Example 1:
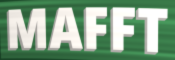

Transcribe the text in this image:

MAFFT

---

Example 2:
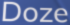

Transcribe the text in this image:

Doze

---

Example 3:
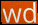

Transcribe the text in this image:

wd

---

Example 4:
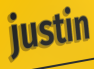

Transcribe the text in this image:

justin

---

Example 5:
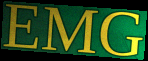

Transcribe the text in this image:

EMG